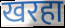
खरहा